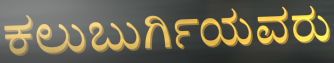
ಕಲುಬುರ್ಗಿಯವರು